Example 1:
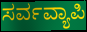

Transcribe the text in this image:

ಸರ್ವವ್ಯಾಪಿ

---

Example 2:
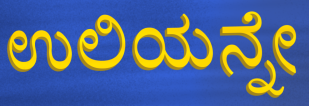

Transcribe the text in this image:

ಉಲಿಯನ್ನೇ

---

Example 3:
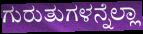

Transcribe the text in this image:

ಗುರುತುಗಳನ್ನೆಲ್ಲಾ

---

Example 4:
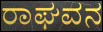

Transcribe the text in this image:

ರಾಘವನ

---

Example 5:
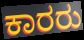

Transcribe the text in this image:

ಕಾರರು